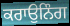
ਕਰਾਉਨਿੰਗ